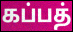
கப்பத்